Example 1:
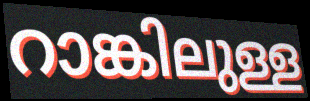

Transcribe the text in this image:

റാങ്കിലുള്ള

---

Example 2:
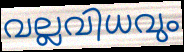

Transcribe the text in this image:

വല്ലവിധവും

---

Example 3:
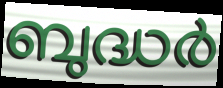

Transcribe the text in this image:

ബുദ്ധർ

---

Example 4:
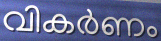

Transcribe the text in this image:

വികർണം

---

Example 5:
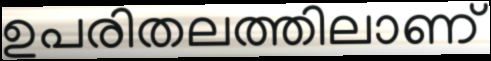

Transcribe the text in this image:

ഉപരിതലത്തിലാണ്